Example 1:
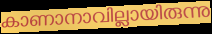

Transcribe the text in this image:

കാണാനാവില്ലായിരുന്നു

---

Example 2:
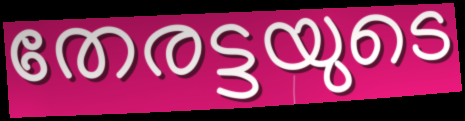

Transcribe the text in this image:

തേരട്ടയുടെ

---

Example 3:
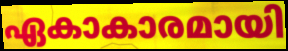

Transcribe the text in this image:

ഏകാകാരമായി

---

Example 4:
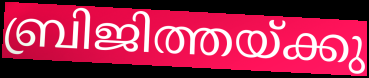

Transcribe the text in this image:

ബ്രിജിത്തയ്ക്കു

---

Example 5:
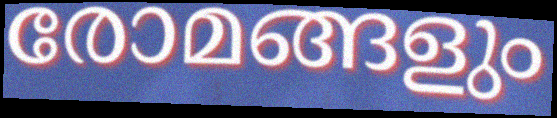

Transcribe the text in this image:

രോമങ്ങളും